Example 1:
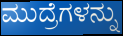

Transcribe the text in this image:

ಮುದ್ರೆಗಳನ್ನು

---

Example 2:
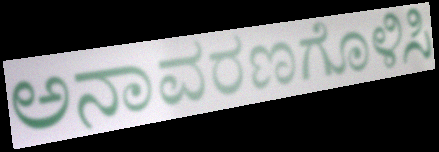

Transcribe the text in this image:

ಅನಾವರಣಗೊಳಿಸಿ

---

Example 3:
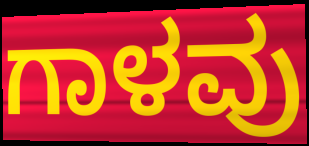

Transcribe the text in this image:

ಗಾಳವು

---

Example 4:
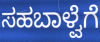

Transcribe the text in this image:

ಸಹಬಾಳ್ವೆಗೆ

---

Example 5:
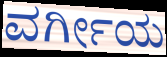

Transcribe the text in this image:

ವರ್ಗೀಯ